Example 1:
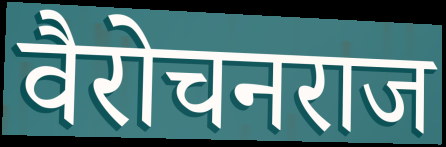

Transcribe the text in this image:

वैरोचनराज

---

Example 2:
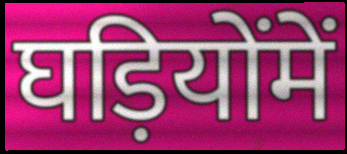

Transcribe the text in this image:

घड़ियोंमें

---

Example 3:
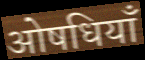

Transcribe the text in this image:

ओषधियाँ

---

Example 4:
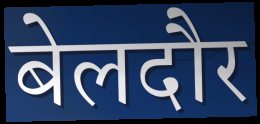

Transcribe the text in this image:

बेलदौर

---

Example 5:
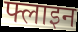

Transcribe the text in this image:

फ्लाइन